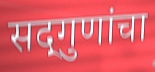
सद्‍गुणांचा